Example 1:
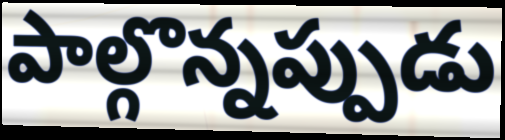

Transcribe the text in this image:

పాల్గొన్నప్పుడు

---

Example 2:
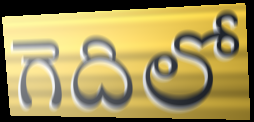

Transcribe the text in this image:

గెదిలో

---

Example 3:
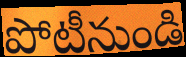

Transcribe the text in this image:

పోటీనుండి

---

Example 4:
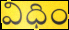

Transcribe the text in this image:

విధిం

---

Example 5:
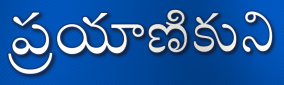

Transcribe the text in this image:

ప్రయాణికుని